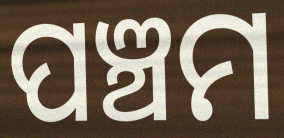
ପଞ୍ଚମ